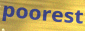
poorest